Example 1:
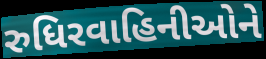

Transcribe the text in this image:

રુધિરવાહિનીઓને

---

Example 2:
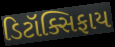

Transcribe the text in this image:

ડિટૉક્સિફાય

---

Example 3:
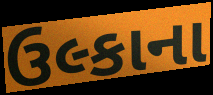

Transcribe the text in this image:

ઉલ્કાના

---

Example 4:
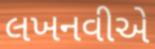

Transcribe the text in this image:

લખનવીએ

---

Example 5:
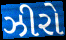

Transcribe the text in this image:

ઝીરો